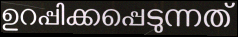
ഉറപ്പിക്കപ്പെടുന്നത്